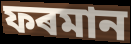
ফৰমান